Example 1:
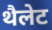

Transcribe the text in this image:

थैलेट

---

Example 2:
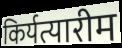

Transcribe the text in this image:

किर्यत्यारीम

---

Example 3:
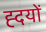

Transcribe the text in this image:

ह्दयों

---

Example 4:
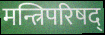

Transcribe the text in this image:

मन्त्रिपरिषद्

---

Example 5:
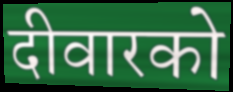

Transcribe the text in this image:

दीवारको